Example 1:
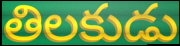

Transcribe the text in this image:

తిలకుడు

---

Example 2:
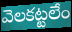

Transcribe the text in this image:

వెలకట్టలేం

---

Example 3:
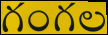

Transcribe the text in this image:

గంగల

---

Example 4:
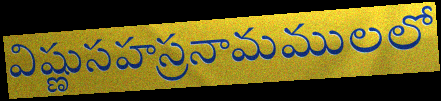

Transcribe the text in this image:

విష్ణుసహస్రనామములలో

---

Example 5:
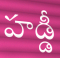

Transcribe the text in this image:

హడ్డీ